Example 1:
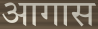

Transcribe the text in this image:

आगास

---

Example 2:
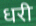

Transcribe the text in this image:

धरी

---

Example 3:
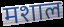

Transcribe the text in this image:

मशाल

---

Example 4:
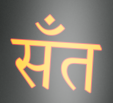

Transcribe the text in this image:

सँत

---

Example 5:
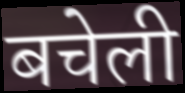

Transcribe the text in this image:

बचेली